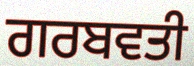
ਗਰਬਵਤੀ